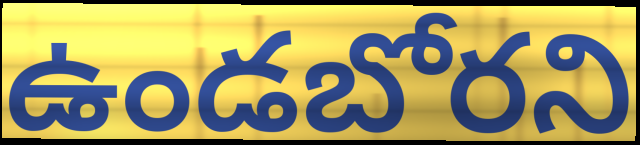
ఉండబోరని